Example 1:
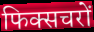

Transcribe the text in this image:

फिक्सचरों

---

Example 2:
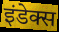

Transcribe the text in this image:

इंडेक्स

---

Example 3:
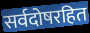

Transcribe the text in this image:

सर्वदोषरहित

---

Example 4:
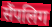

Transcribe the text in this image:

सैंपलिग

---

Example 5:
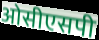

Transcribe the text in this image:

ओसीएसपी